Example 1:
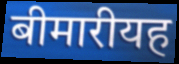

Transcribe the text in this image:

बीमारीयह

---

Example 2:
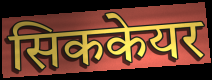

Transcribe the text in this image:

सिककेयर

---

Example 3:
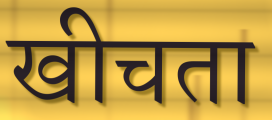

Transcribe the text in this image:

खीचता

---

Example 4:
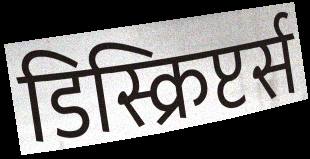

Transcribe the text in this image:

डिस्क्रिप्टर्स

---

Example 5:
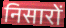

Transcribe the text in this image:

निसारों